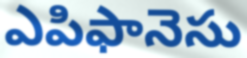
ఎపిఫానెసు